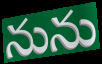
నును